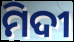
ମିଦୀ